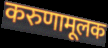
करुणामूलक